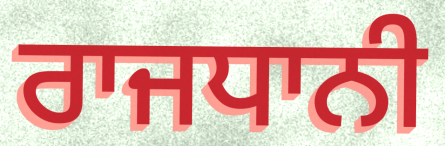
ਰਾਜਧਾਨੀ